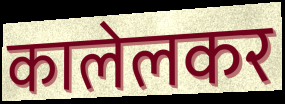
कालेलकर